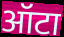
ऑटा